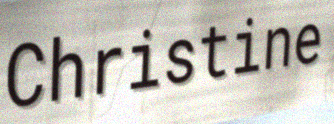
Christine